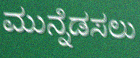
ಮುನ್ನೆಡಸಲು